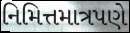
નિમિત્તમાત્રપણે